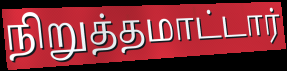
நிறுத்தமாட்டார்